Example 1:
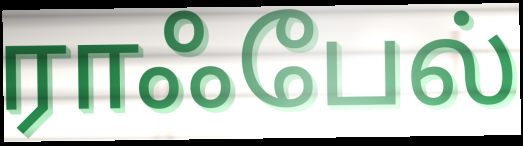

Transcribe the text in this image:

ராஃபேல்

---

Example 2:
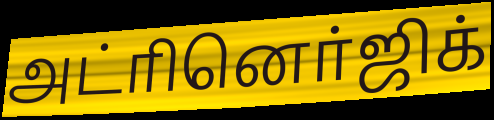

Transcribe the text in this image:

அட்ரினெர்ஜிக்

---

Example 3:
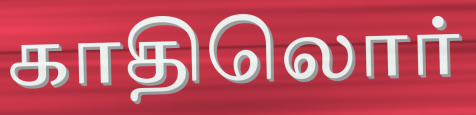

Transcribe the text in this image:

காதிலொர்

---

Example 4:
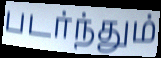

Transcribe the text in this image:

படர்ந்தும்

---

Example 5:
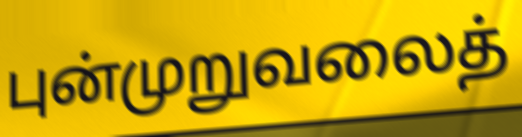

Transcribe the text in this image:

புன்முறுவலைத்